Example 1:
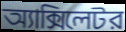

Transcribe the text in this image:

অ্যাক্সিলেটর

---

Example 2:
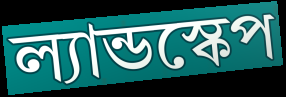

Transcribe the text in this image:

ল্যান্ডস্কেপ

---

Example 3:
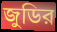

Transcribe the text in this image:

জুডির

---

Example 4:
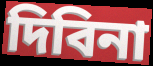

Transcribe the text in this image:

দিবিনা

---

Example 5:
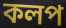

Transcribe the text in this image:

কলপ